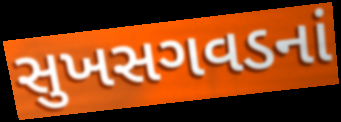
સુખસગવડનાં